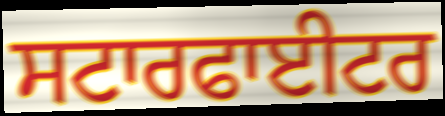
ਸਟਾਰਫਾਈਟਰ